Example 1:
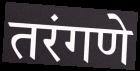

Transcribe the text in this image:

तरंगणे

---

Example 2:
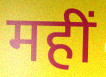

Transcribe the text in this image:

महीं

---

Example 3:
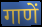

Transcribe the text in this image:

गाणें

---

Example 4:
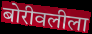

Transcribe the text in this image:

बोरीवलीला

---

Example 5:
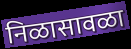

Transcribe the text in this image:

निळासावळा